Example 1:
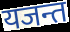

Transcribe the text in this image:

यजन्त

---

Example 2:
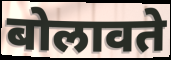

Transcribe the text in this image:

बोलावते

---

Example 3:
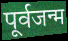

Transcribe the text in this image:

पूर्वजन्म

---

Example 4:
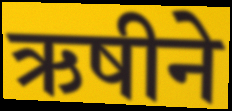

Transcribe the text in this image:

ऋषीने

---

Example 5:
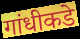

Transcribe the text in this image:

गांधीकडे